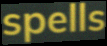
spells